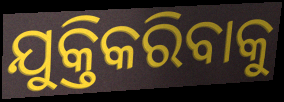
ଯୁକ୍ତିକରିବାକୁ